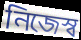
নিজেস্ব